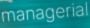
managerial